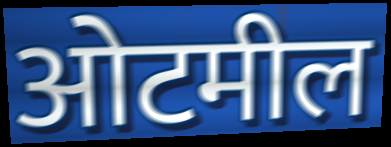
ओटमील